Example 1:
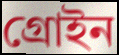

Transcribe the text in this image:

গ্রোইন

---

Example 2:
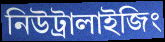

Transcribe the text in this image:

নিউট্রালাইজিং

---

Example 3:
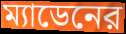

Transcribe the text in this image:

ম্যাডেনের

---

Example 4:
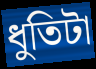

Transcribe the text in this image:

ধুতিটা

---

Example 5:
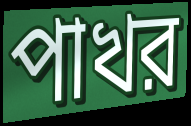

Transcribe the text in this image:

পাখর